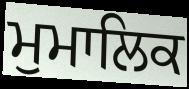
ਮੁਮਾਲਿਕ